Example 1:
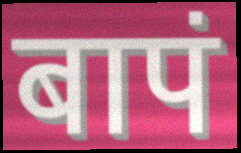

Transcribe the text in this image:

बापं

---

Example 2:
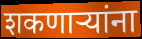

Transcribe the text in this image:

शकणार्‍यांना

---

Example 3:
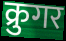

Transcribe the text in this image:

क्रुगर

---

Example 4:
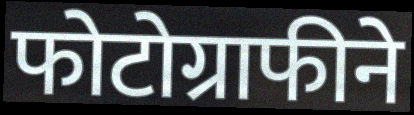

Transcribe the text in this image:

फोटोग्राफीने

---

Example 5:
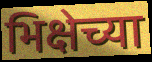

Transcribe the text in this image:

भिक्षेच्या